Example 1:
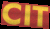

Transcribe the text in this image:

CIT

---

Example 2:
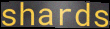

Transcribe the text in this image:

shards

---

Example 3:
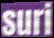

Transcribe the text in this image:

suri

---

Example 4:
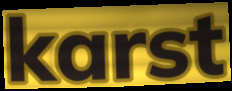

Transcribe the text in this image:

karst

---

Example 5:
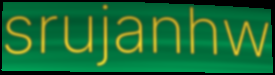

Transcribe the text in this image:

srujanhw